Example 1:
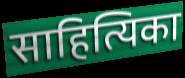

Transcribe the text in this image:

साहित्यिका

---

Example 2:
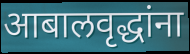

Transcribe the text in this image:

आबालवृद्धांना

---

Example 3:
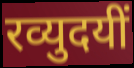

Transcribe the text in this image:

रव्युदयीं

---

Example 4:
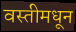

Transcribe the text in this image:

वस्तीमधून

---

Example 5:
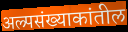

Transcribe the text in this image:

अल्पसंख्याकांतील